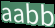
aabb